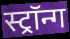
स्ट्रॉन्ग